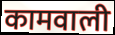
कामवाली